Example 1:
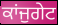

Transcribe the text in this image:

ਕਾਂਜੁਗੇਟ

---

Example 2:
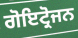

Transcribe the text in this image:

ਗੋਇਟ੍ਰੋਜਨ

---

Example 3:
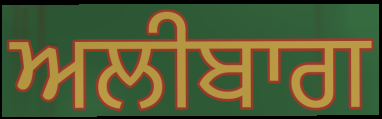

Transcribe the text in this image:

ਅਲੀਬਾਗ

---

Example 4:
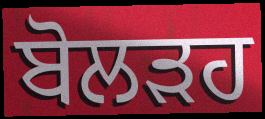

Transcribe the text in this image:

ਬੋਲੜਹ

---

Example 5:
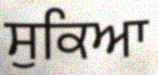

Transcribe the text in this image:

ਸੁਕਿਆ